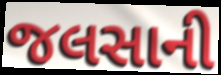
જલસાની